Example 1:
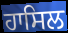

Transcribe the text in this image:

ਹਾਸਿਲ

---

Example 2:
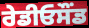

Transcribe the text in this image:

ਰੇਡੀਓਸੌਂਡ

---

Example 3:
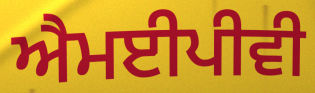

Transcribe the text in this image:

ਐਮਈਪੀਵੀ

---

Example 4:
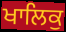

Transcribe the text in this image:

ਖਾਲਿਕੁ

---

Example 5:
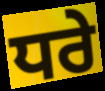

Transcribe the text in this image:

ਧਰੇ